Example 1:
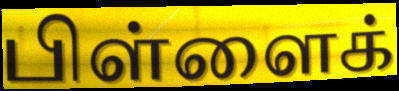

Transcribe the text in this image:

பிள்ளைக்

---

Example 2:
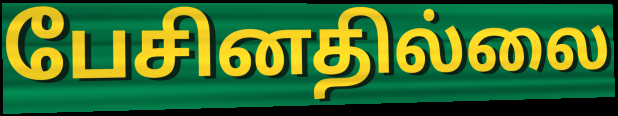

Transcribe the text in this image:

பேசினதில்லை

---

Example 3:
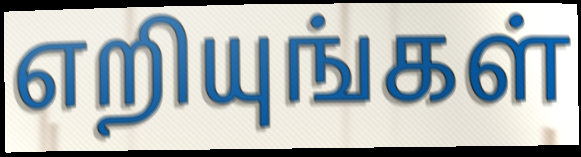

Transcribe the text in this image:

எறியுங்கள்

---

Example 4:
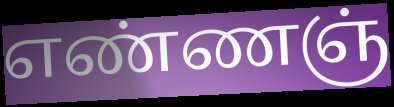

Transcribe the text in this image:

எண்ணஞ்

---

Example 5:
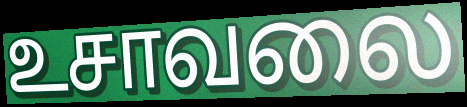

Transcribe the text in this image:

உசாவலை